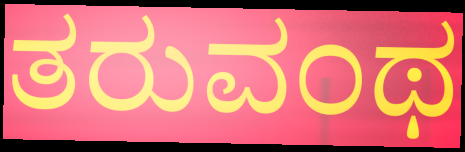
ತರುವಂಥ